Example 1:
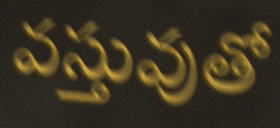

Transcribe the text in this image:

వస్తువుతో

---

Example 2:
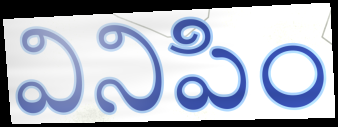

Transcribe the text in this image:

వినిపిం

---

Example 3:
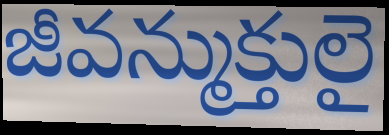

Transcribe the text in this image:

జీవన్ముక్తులై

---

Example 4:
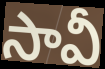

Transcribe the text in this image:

సావీ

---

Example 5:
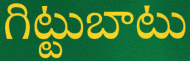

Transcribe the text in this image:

గిట్టుబాటు